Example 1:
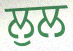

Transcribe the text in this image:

ਲੁਲ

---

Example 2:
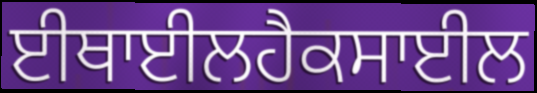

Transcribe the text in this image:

ਈਥਾਈਲਹੈਕਸਾਈਲ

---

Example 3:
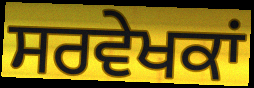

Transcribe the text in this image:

ਸਰਵੇਖਕਾਂ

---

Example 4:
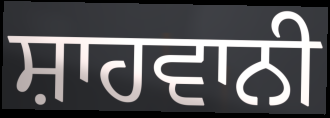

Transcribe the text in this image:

ਸ਼ਾਹਵਾਨੀ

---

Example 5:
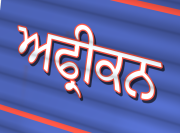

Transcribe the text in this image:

ਅਫ੍ਰੀਕਨ